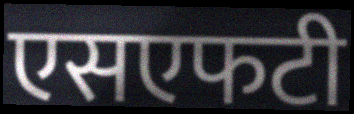
एसएफटी